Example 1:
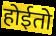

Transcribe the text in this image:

होईतो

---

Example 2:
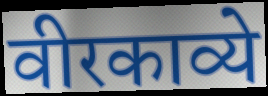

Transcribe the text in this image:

वीरकाव्ये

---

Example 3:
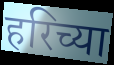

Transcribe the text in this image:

हरिच्या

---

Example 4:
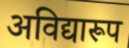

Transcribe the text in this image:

अविद्यारूप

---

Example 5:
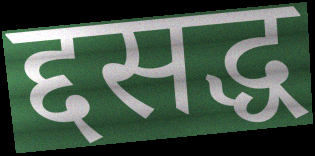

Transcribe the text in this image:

द्दसद्ध